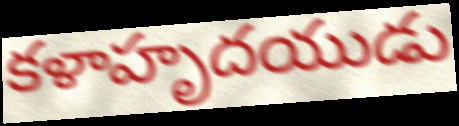
కళాహృదయుడు